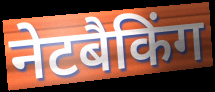
नेटबैकिंग